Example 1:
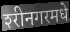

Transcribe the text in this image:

श्रीनगरमधे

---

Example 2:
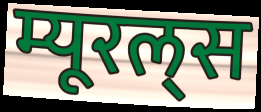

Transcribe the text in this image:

म्यूरल्स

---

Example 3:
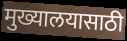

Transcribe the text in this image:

मुख्यालयासाठी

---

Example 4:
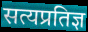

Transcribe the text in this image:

सत्यप्रतिज्ञ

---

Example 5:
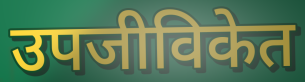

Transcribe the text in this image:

उपजीविकेत